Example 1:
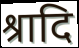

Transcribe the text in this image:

श्रादि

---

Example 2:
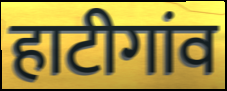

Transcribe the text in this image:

हाटीगांव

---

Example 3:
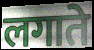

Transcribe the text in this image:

लगाते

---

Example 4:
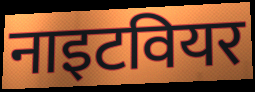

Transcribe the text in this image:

नाइटवियर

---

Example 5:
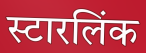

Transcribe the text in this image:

स्‍टारलिंक